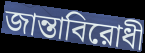
জান্তাবিরোধী